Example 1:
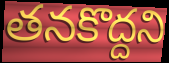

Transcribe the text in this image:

తనకొద్దని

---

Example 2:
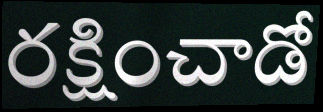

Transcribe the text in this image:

రక్షించాడో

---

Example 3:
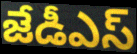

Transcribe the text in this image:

జేడీఎస్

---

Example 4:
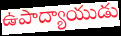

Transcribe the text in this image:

ఉపాద్యాయుడు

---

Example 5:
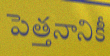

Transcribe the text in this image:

పెత్తనానికీ